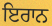
ਇਰਾਨ